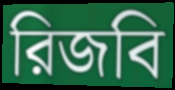
রিজবি